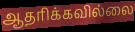
ஆதரிக்கவில்லை